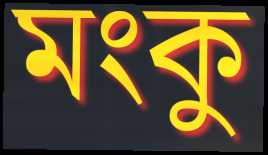
মংকু